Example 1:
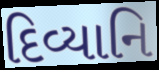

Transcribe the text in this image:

દિવ્યાનિ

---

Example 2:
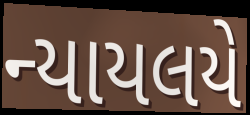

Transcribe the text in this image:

ન્યાયલયે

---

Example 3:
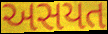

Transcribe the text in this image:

અસયત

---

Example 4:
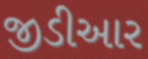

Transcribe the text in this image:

જીડીઆર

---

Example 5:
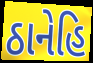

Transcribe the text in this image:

ઠાનેહિ